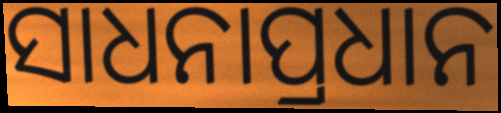
ସାଧନାପ୍ରଧାନ